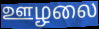
ஊழலை